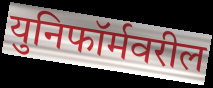
युनिफॉर्मवरील